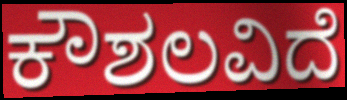
ಕೌಶಲವಿದೆ